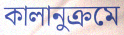
কালানুক্রমে